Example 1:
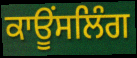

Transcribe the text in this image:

ਕਾਊਂਸਲਿੰਗ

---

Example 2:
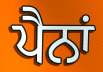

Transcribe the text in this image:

ਪੈਨਾਂ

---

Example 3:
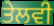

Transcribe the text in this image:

ਤੇਲਵੀ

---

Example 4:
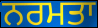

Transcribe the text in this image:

ਨਰਮਤਾ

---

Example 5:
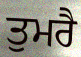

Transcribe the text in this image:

ਤੁਮਰੈ